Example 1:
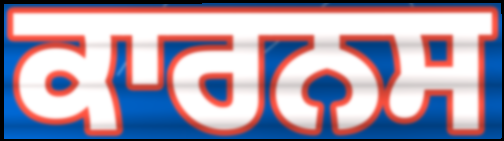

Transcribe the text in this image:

ਕਾਰਨਸ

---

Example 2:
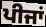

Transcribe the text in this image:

ਪੀਜਾਂ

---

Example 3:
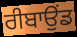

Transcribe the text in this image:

ਰੀਬਾਉਂਡ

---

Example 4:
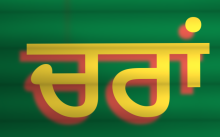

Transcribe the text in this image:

ਚਰਾਂ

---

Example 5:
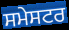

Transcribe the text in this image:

ਸਮੇਸਟਰ